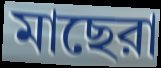
মাছেরা